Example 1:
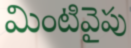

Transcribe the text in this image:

మింటివైపు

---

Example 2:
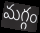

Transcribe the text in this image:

మగ్గం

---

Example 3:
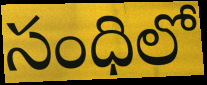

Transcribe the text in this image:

సంధిలో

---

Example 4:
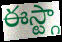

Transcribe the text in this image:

ఈస్ట్గా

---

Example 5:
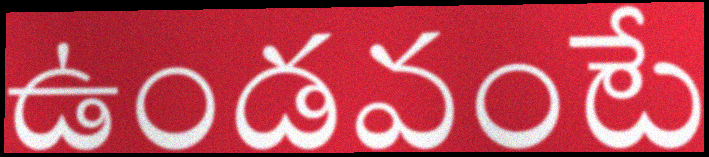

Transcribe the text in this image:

ఉండవంటే